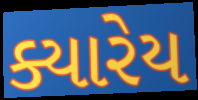
ક્યારેય